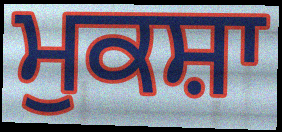
ਮੁਕਸ਼ਾ